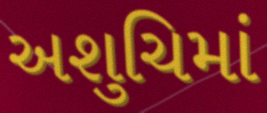
અશુચિમાં